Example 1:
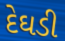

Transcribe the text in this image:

દેઘડી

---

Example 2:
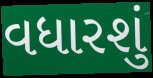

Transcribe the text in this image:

વધારશું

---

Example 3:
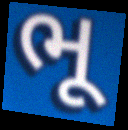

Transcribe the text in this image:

ભૂ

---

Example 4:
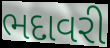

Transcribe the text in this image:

ભદાવરી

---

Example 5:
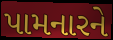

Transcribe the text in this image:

પામનારને